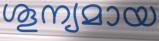
ശൂന്യമായ